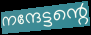
നന്ദേട്ടന്റെ